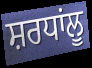
ਸ਼ਰਧਾਂਲੂ